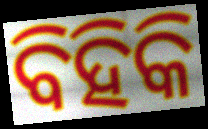
ବିହିକି